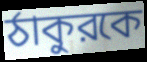
ঠাকুরকে